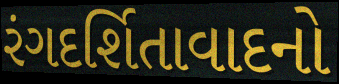
રંગદર્શિતાવાદનો